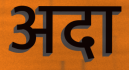
अदा